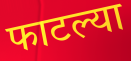
फाटल्या